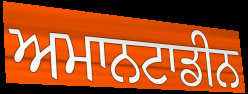
ਅਮਾਨਟਾਡੀਨ